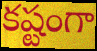
కష్టంగా